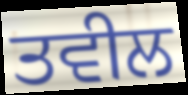
ਤਵੀਲ